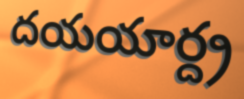
దయయార్ద్ర